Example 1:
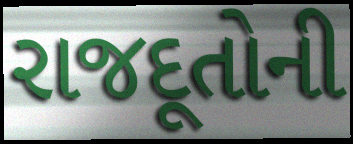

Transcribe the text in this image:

રાજદૂતોની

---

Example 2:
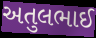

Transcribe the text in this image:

અતુલભાઈ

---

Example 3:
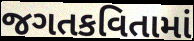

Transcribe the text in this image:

જગતકવિતામાં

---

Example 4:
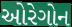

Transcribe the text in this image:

ઓરેગોન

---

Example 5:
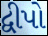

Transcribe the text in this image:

દ્વીપો